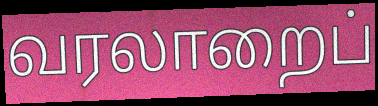
வரலாறைப்